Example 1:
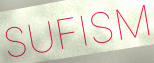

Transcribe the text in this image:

SUFISM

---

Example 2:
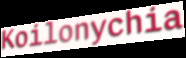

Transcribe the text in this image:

Koilonychia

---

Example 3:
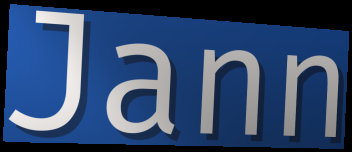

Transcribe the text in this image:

Jann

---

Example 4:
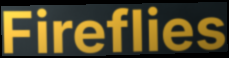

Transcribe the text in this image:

Fireflies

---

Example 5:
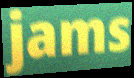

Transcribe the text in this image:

jams